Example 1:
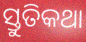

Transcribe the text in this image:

ସ୍ତୁତିକଥା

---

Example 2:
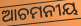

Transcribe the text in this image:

ଆଚମନୀୟ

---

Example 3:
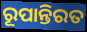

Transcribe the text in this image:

ରୂପାନ୍ତିରତ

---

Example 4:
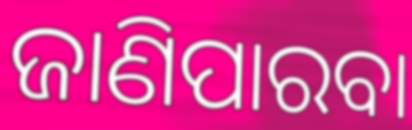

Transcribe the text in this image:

ଜାଣିପାରବା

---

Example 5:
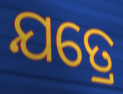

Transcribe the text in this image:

ଯତ୍ରେ